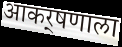
आकर्षणाला